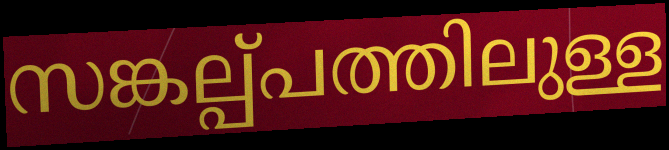
സങ്കല്പ്പത്തിലുള്ള